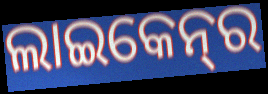
ଲାଇକେନ୍‌ର